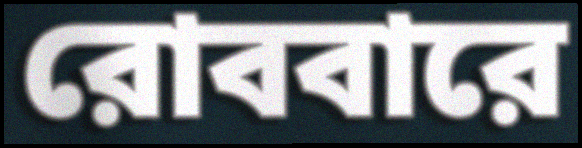
রোববারে